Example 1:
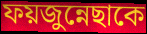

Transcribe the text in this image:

ফয়জুন্নেছাকে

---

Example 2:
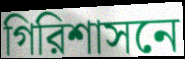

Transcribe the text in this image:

গিরিশাসনে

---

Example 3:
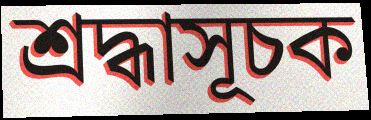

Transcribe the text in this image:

শ্রদ্ধাসূচক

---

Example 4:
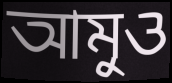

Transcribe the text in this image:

আমুও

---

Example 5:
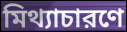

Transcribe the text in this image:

মিথ্যাচারণে